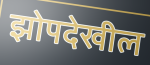
झोपदेखील